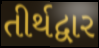
તીર્થદ્વાર